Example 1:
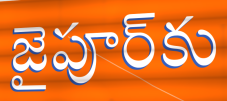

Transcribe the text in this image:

జైపూర్‌కు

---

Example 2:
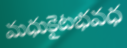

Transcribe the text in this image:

మధుకైటభవధ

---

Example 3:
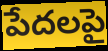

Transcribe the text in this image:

పేదలపై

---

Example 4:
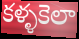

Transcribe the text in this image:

కళ్ళకెలా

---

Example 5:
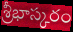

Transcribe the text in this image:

శ్రీభాస్కరం